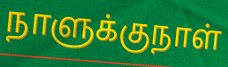
நாளுக்குநாள்